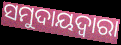
ସମୁଦାୟଦ୍ୱାରା